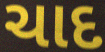
ચાદ